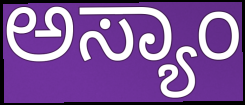
ಅಸ್ಯಾಂ